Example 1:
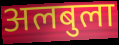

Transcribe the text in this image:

अलबुला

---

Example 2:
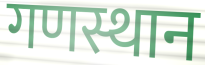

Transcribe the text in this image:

गणस्थान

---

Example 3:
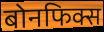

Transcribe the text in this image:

बोनफिक्स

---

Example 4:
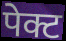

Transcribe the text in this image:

पेक्ट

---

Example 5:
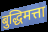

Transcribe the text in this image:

बुद्धिमत्ता